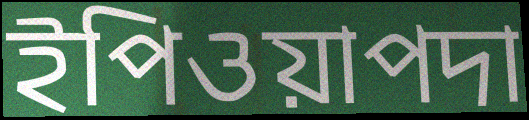
ইপিওয়াপদা